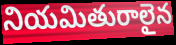
నియమితురాలైన